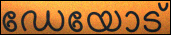
ഡേയോട്